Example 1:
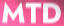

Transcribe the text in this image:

MTD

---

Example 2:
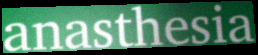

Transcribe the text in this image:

anasthesia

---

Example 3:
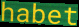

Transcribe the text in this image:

habet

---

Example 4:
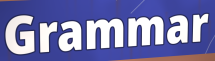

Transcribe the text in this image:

Grammar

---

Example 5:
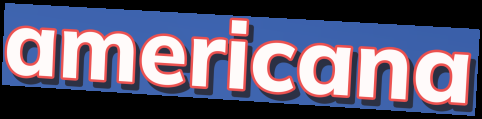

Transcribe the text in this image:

americana